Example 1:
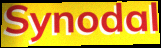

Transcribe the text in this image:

Synodal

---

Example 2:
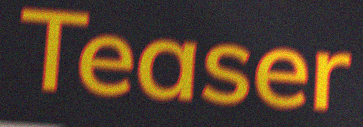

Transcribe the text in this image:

Teaser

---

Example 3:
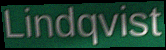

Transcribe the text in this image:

Lindqvist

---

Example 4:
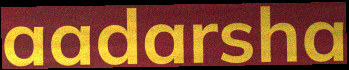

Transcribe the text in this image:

aadarsha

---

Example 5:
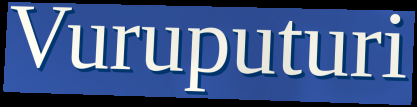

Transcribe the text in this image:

Vuruputuri